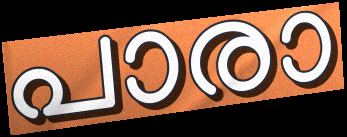
പാരാ